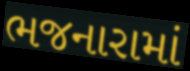
ભજનારામાં